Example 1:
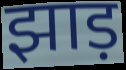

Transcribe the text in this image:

झाड़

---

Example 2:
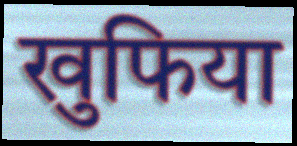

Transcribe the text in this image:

खुफिया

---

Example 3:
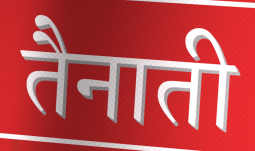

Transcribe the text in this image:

तैनाती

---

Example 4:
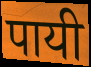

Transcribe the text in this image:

पायी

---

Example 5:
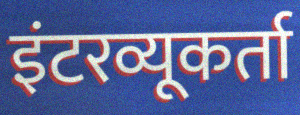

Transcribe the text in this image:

इंटरव्यूकर्ता